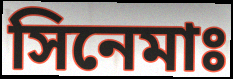
সিনেমাঃ